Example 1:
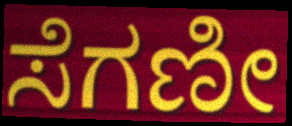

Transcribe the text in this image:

ಸೆಗಣೀ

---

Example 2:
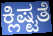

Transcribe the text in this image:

ಕ್ಲಿಷ್ಟತೆ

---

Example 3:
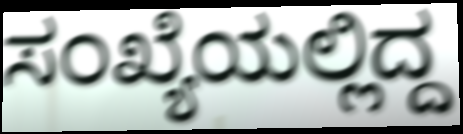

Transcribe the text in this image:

ಸಂಖ್ಯೆಯಲ್ಲಿದ್ದ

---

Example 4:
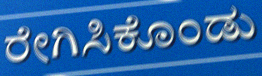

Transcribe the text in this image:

ರೇಗಿಸಿಕೊಂಡು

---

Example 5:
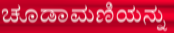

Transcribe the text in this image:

ಚೂಡಾಮಣಿಯನ್ನು